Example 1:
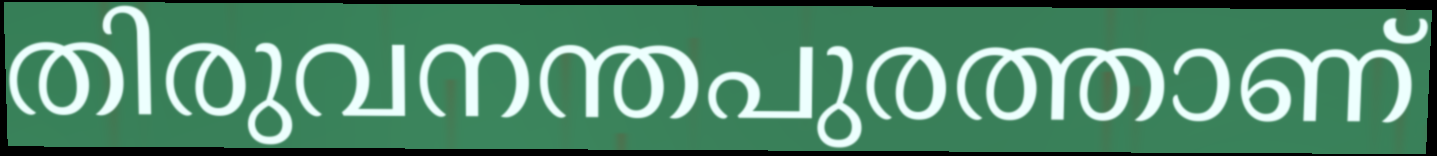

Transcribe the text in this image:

തിരുവനന്തപുരത്താണ്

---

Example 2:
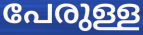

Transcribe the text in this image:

പേരുള്ള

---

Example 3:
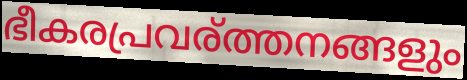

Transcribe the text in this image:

ഭീകരപ്രവര്ത്തനങ്ങളും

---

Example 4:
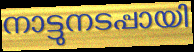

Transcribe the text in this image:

നാട്ടുനടപ്പായി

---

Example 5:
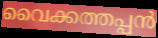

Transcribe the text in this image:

വൈക്കത്തപ്പൻ